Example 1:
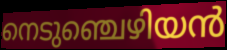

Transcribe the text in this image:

നെടുഞ്ചെഴിയൻ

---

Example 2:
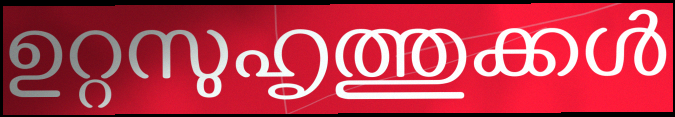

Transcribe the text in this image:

ഉറ്റസുഹൃത്തുക്കൾ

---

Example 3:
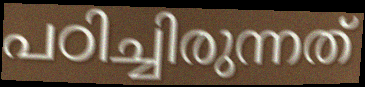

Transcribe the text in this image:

പഠിച്ചിരുന്നത്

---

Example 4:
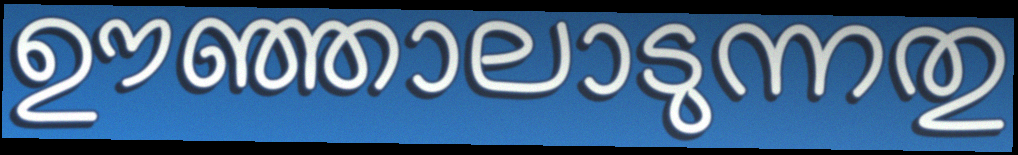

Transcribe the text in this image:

ഊഞ്ഞാലാടുന്നതു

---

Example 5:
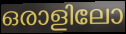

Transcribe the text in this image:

ഒരാളിലോ